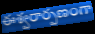
ఈశ్వరార్పణంగా